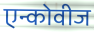
एन्कोवीज